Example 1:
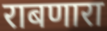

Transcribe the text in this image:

राबणारा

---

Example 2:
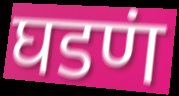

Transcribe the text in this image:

घडणं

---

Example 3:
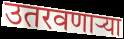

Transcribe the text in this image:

उतरवणाऱ्या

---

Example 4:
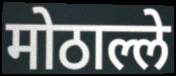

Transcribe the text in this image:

मोठाल्ले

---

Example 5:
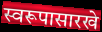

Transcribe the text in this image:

स्वरूपासारखे